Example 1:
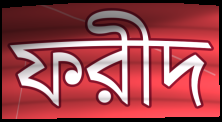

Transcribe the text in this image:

ফরীদ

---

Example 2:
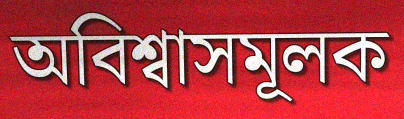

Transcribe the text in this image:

অবিশ্বাসমূলক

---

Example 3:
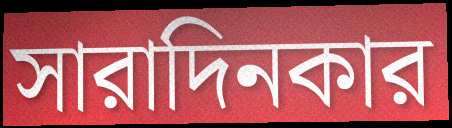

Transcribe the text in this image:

সারাদিনকার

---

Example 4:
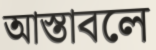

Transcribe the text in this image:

আস্তাবলে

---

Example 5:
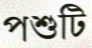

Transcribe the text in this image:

পশুটি